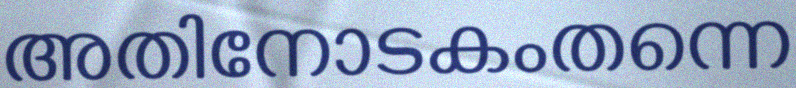
അതിനോടകംതന്നെ